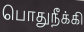
பொதுநீக்கி